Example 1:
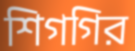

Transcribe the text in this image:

শিগগির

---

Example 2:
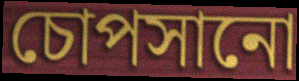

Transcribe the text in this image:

চোপসানো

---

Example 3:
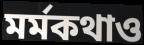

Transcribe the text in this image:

মর্মকথাও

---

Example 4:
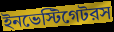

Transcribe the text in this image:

ইনভেস্টিগেটরস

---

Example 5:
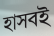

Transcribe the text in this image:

হাসবই